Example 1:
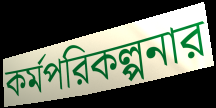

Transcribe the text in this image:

কর্মপরিকল্পনার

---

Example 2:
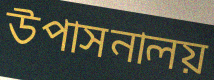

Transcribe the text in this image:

উপাসনালয়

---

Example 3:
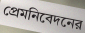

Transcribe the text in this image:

প্রেমনিবেদনের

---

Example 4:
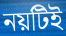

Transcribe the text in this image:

নয়টিই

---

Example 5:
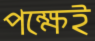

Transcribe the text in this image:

পক্ষেই